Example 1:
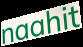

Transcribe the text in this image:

naahit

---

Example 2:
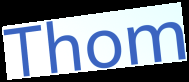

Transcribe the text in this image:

Thom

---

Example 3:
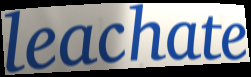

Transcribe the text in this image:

leachate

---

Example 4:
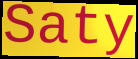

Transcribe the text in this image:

Saty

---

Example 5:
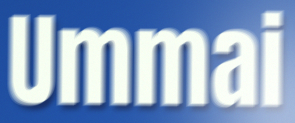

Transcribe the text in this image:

Ummai